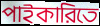
পাইকারিতে